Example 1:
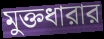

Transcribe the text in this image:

মুক্তধারার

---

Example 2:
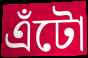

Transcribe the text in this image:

এঁটো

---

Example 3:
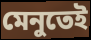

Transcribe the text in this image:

মেনুতেই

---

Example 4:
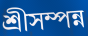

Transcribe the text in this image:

শ্রীসম্পন্ন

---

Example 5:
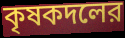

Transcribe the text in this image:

কৃষকদলের